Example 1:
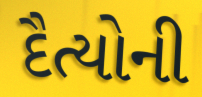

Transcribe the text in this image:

દૈત્યોની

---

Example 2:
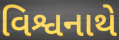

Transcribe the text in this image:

વિશ્વનાથે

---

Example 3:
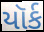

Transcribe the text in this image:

યૉર્ક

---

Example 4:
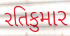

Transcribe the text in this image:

રતિકુમાર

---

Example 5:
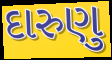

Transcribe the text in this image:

દારુણુ